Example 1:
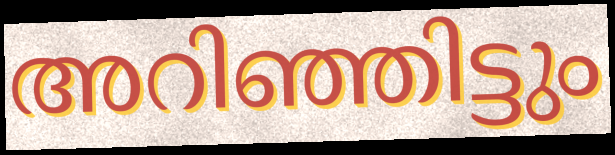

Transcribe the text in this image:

അറിഞ്ഞിട്ടും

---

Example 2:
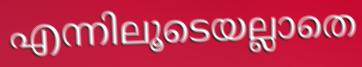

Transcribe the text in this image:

എന്നിലൂടെയല്ലാതെ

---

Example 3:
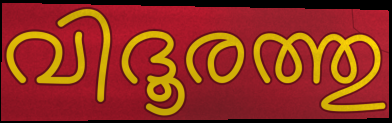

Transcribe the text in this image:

വിദൂരത്തു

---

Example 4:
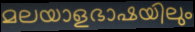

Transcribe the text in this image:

മലയാളഭാഷയിലും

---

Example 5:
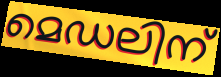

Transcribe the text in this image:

മെഡലിന്